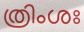
ത്രിംശഃ